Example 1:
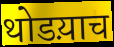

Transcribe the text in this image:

थोडय़ाच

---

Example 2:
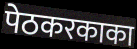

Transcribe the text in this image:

पेठकरकाका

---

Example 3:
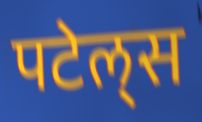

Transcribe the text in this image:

पटेल्स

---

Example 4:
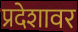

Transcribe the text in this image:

प्रदेशावर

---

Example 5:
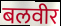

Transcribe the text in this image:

बलवीर